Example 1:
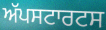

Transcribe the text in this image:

ਅੱਪਸਟਾਰਟਸ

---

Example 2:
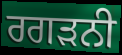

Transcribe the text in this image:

ਰਗੜਨੀ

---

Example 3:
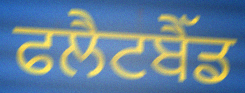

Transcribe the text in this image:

ਫਲੈਟਬੈੱਡ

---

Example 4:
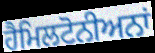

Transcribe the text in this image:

ਹੈਮਿਲਟੋਨੀਅਨਾਂ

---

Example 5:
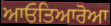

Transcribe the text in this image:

ਆਓਤਿਆਰੋਆ